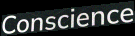
Conscience